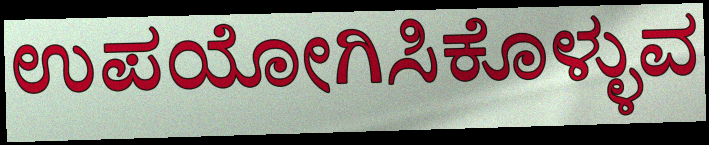
ಉಪಯೋಗಿಸಿಕೊಳ್ಳುವ